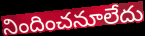
నిందించనూలేదు